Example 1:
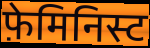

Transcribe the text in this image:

फ़ेमिनिस्ट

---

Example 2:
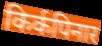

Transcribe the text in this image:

किर्कपिनार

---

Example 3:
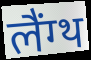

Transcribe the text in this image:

लैंग्थ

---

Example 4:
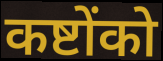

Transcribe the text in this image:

कष्टोंको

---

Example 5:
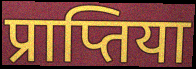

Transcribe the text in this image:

प्राप्तिया